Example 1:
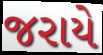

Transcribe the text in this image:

જરાયે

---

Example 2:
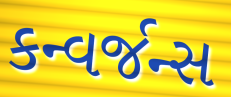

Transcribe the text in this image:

કન્વર્જન્સ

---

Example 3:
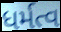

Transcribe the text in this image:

ધર્મત્વ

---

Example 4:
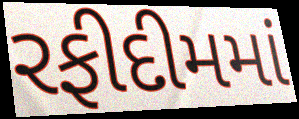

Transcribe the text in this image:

રફીદીમમાં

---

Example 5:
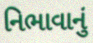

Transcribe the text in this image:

નિભાવાનું